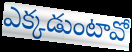
ఎక్కడుంటావో